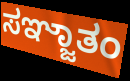
ಸಞ್ಜಾತಂ